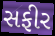
સફીર